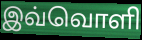
இவ்வொளி